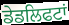
ਡੇਡਲਿਫਟਾਂ